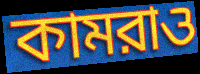
কামরাও